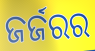
ଜର୍ଜରର